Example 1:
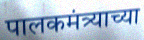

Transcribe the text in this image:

पालकमंत्र्याच्या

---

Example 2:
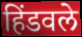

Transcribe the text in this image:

हिंडवले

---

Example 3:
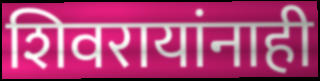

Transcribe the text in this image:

शिवरायांनाही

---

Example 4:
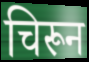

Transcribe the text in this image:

चिरून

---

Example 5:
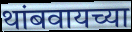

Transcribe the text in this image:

थांबवायच्या